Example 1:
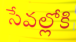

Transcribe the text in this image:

సేవల్లోకి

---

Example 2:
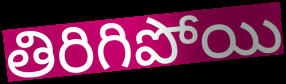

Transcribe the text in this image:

తిరిగిపోయి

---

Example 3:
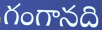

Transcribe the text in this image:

గంగానది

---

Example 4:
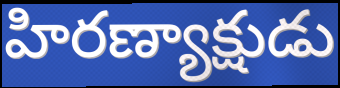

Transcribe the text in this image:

హిరణ్యాక్షుడు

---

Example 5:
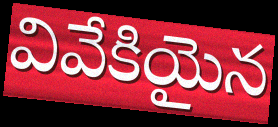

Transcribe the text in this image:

వివేకియైన